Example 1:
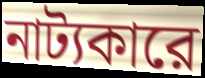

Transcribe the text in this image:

নাট্যকারে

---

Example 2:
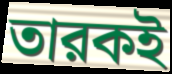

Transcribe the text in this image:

তারকই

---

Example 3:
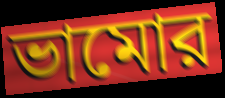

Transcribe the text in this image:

ভামোর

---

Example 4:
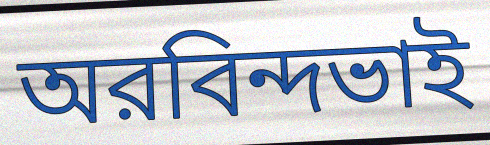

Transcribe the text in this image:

অরবিন্দভাই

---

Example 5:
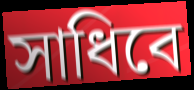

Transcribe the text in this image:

সাধিবে